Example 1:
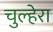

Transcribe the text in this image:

चुल्हेरा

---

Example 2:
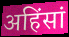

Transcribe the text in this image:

अहिंसां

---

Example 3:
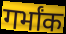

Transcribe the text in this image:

गर्भांक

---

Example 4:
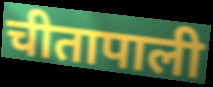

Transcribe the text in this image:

चीतापाली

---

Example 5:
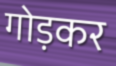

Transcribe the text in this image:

गोड़कर